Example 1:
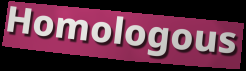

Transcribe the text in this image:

Homologous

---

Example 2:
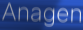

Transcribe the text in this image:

Anagen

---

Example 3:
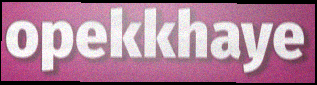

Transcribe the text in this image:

opekkhaye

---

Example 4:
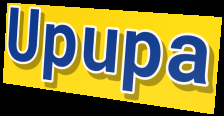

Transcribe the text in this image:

Upupa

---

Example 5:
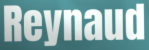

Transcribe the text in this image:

Reynaud